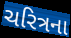
ચરિત્રના